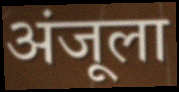
अंजूला